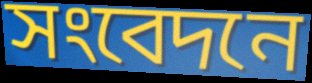
সংবেদনে